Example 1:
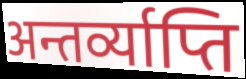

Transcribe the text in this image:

अन्तर्व्याप्ति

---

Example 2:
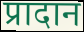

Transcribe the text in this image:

प्रादान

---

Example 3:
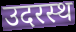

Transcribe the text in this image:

उदरस्थ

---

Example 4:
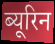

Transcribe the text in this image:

ब्यूरिन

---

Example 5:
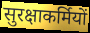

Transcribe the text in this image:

सुरक्षाकर्मियों